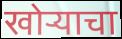
खोऱ्याचा